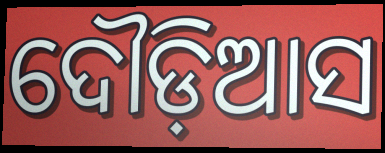
ଦୌଡ଼ିଆସ